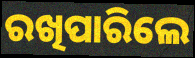
ରଖିପାରିଲେ